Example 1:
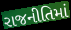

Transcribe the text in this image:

રાજનીતિમાં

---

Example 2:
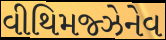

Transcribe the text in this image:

વીથિમજ્ઝેનેવ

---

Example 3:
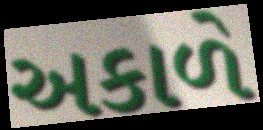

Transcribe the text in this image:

અકાળે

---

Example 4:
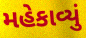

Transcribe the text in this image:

મહેકાવ્યું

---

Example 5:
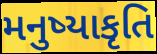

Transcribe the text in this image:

મનુષ્યાકૃતિ